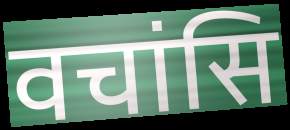
वचांसि